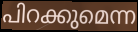
പിറക്കുമെന്ന